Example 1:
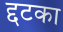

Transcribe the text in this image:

द्दटका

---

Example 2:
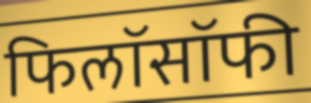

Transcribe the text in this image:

फिलॉसॉफी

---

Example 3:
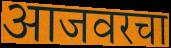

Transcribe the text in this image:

आजवरचा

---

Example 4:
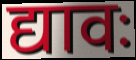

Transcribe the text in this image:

द्यावः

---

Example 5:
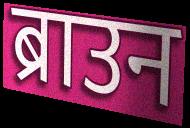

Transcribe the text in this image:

ब्राउन